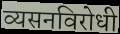
व्यसनविरोधी